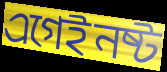
এগেইনষ্ট